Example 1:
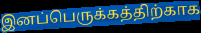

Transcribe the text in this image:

இனப்பெருக்கத்திற்காக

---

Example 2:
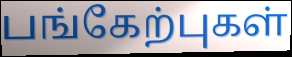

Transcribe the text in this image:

பங்கேற்புகள்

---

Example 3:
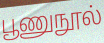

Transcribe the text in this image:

பூணுநூல்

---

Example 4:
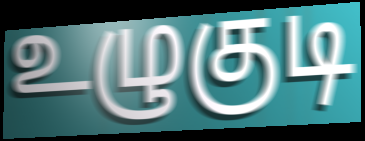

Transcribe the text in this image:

உழுகுடி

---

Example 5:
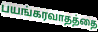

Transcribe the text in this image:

பயங்கரவாதத்தை